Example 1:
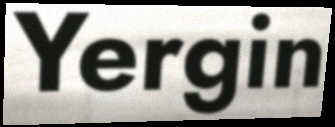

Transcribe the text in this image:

Yergin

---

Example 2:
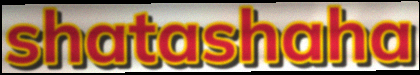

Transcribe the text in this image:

shatashaha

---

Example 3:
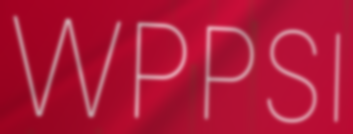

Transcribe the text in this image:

WPPSI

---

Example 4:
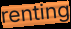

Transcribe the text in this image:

renting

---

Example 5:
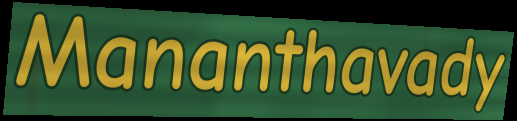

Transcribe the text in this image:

Mananthavady